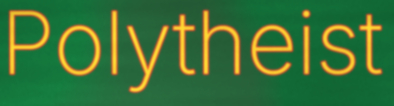
Polytheist